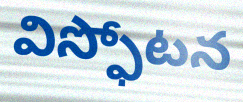
విస్ఫోటన